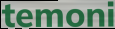
temoni